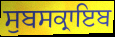
ਸੁਬਸਕ੍ਰਾਇਬ